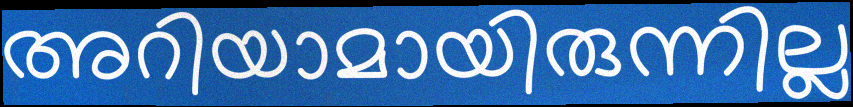
അറിയാമായിരുന്നില്ല